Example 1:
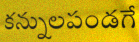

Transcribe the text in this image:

కన్నులపండగే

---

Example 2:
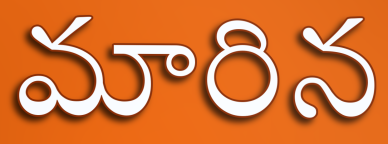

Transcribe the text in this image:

మారిన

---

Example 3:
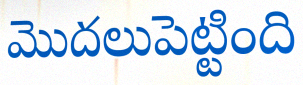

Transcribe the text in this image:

మొదలుపెట్టింది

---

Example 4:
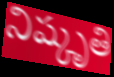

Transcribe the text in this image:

నిష్కృతి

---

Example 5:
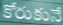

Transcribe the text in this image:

కోరుకునే